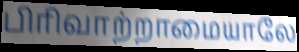
பிரிவாற்றாமையாலே